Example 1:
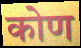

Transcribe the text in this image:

कोण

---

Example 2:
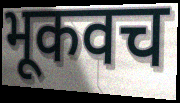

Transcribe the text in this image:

भूकवच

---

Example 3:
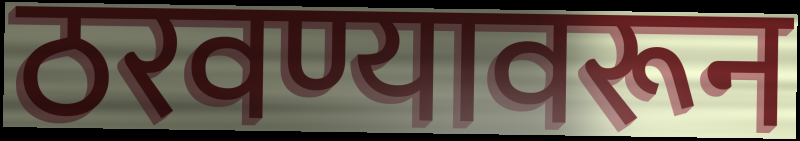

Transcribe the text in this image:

ठरवण्यावरून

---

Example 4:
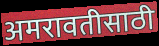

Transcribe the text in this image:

अमरावतीसाठी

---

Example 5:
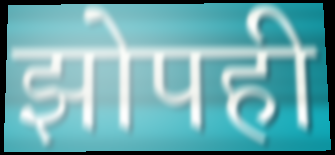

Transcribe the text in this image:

झोपही